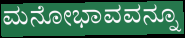
ಮನೋಭಾವವನ್ನೂ